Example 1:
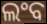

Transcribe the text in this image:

ଲଂବ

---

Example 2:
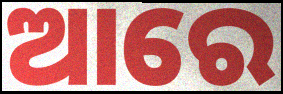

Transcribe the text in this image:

ଆରେ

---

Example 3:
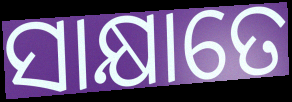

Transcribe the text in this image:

ସାକ୍ଷାତେ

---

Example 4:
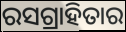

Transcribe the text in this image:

ରସଗ୍ରାହିତାର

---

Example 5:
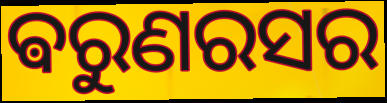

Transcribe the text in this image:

ଵରୁଣରସର